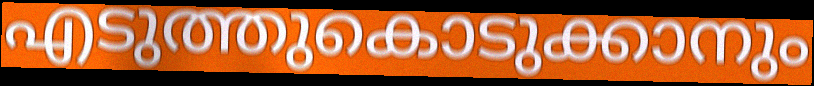
എടുത്തുകൊടുക്കാനും